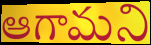
ఆగామని